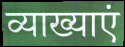
व्याख्याएं